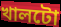
খালটো